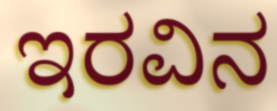
ಇರವಿನ